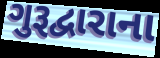
ગુરૂદ્વારાના